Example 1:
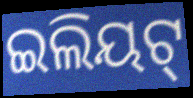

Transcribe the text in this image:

ଇଲିୟଟ୍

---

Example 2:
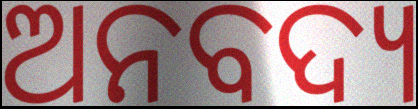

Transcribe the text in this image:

ଅନବଦ୍ୟ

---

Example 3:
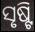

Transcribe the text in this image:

ସୃଷ୍ଟି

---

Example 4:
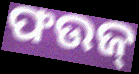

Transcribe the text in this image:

ଫଉଜ୍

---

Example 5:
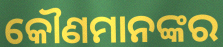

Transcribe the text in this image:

କୌଣମାନଙ୍କର